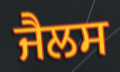
ਜੈਲਸ